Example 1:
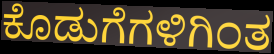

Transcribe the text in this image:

ಕೊಡುಗೆಗಳಿಗಿಂತ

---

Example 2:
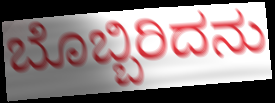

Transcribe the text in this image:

ಬೊಬ್ಬಿರಿದನು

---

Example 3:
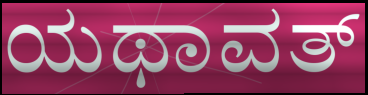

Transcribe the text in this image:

ಯಥಾವತ್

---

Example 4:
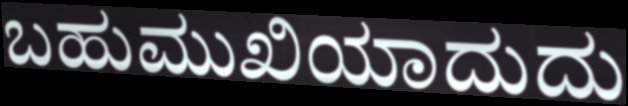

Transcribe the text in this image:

ಬಹುಮುಖಿಯಾದುದು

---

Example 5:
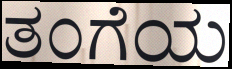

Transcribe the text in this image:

ತಂಗೆಯ